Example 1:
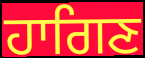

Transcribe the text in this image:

ਹਾਗਿਣ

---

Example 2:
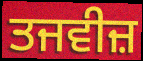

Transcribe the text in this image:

ਤਜਵੀਜ਼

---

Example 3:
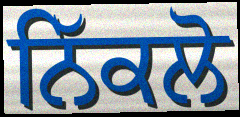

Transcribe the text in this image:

ਨਿੱਕਲੋ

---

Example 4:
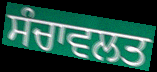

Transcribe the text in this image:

ਸੰਚਾਵਲਤ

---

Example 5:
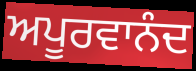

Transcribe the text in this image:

ਅਪੂਰਵਾਨੰਦ